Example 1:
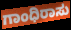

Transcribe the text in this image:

ಗಾಂಧಿರಾಸು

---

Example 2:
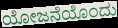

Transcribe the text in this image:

ಯೋಜನೆಯೊಂದು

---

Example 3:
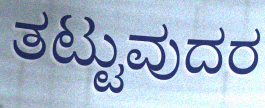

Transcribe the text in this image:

ತಟ್ಟುವುದರ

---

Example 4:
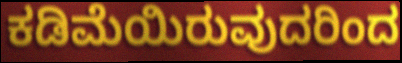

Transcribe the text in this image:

ಕಡಿಮೆಯಿರುವುದರಿಂದ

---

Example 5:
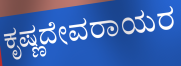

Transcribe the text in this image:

ಕೃಷ್ಣದೇವರಾಯರ